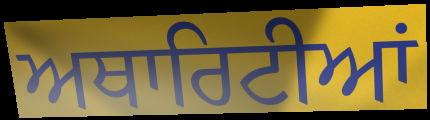
ਅਥਾਰਿਟੀਆਂ